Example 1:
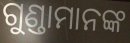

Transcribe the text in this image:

ଗୁଣ୍ଡାମାନଙ୍କ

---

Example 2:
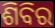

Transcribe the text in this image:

ଶିବିର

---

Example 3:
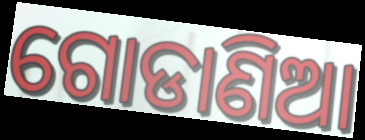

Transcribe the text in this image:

ଗୋଡାଣିଆ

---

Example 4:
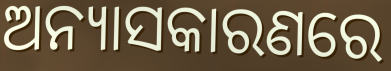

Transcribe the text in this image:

ଅନ୍ୟାସକାରଣରେ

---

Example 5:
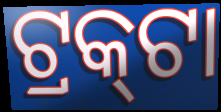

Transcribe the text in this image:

ଟ୍ରକ୍‌ଟା